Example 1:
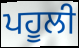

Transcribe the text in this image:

ਪਹੂਲੀ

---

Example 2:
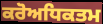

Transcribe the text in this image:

ਕਰੋਅਧਿਕਤਮ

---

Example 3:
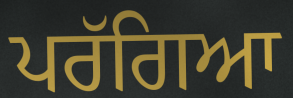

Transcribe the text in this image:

ਪਰੱਗਿਆ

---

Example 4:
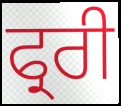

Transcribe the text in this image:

ਫ੍ਰਰੀ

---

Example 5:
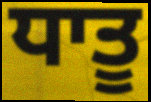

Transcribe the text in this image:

ਧਾਤੂ